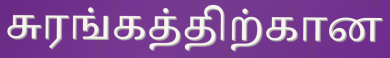
சுரங்கத்திற்கான